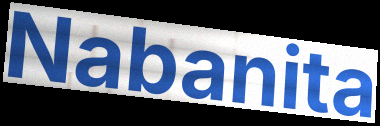
Nabanita